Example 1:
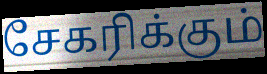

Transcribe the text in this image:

சேகரிக்கும்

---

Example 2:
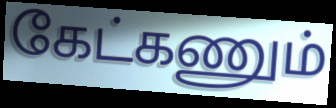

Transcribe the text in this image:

கேட்கணும்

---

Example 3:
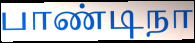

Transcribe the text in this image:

பாண்டிநா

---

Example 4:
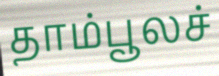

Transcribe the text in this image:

தாம்பூலச்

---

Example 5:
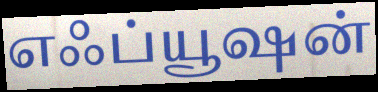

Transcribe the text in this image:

எஃப்யூஷன்